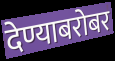
देण्याबरोबर